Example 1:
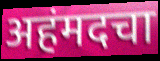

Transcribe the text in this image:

अहंमदचा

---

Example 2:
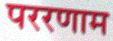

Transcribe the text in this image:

पररणाम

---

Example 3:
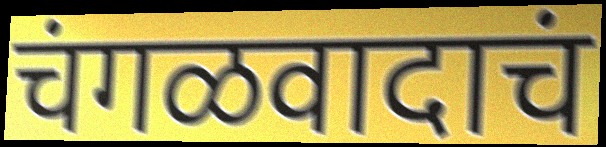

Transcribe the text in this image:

चंगळवादाचं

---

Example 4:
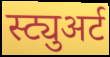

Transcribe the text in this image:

स्ट्युअर्ट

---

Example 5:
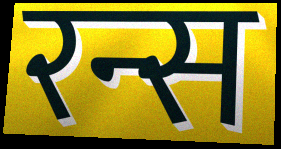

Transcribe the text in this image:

रन्स